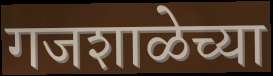
गजशाळेच्या